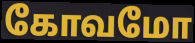
கோவமோ